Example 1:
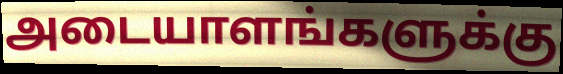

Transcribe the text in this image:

அடையாளங்களுக்கு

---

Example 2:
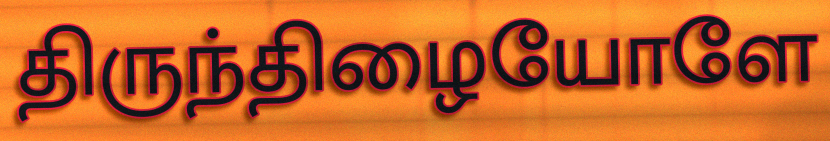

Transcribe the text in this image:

திருந்திழையோளே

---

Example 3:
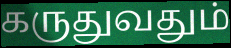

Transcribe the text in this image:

கருதுவதும்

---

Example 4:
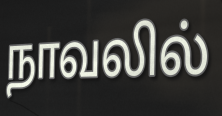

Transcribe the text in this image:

நாவலில்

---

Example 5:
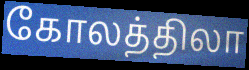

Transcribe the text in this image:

கோலத்திலா